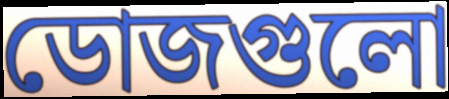
ডোজগুলো